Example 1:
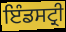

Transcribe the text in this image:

ਇੰਡਸਟ੍ਰੀ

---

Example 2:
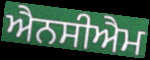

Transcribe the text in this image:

ਐਨਸੀਐਮ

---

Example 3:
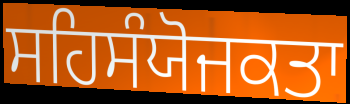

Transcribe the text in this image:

ਸਹਿਸੰਯੋਜਕਤਾ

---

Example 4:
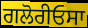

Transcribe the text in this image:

ਗਲੋਰੀਓਸਾ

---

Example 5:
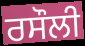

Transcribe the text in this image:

ਰਸੌਲੀ